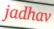
jadhav